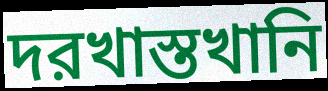
দরখাস্তখানি